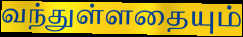
வந்துள்ளதையும்